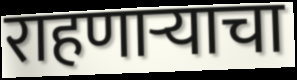
राहणाऱ्याचा